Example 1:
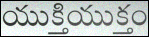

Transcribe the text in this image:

యుక్తియుక్తం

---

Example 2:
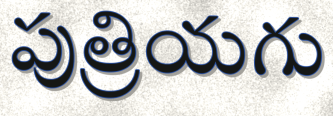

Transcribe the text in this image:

పుత్రియగు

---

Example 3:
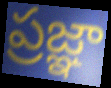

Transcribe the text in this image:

ప్రజ్ఞా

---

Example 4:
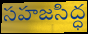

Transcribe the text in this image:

సహజసిద్ధ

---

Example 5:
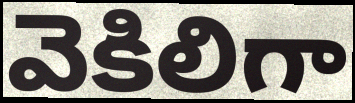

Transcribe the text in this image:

వెకిలిగా